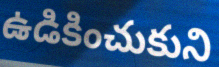
ఉడికించుకుని